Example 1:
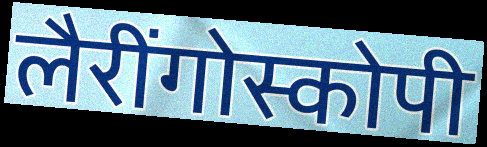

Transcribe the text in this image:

लैरींगोस्कोपी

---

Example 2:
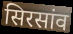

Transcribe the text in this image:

सिरसांव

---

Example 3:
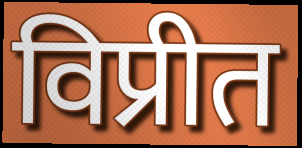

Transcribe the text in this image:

विप्रीत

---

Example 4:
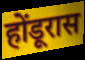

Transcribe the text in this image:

होंडूरास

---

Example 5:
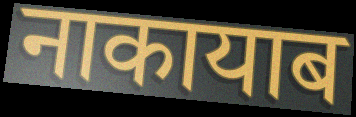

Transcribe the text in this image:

नाकायाब